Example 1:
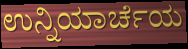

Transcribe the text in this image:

ಉನ್ನಿಯಾರ್ಚೆಯ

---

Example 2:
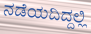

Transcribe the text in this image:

ನಡೆಯದಿದ್ದಲ್ಲಿ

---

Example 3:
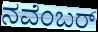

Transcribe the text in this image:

ನವೆಂಬರ್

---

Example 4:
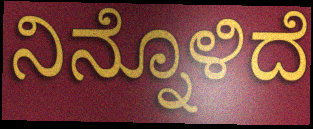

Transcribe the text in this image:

ನಿನ್ನೊಳಿದೆ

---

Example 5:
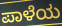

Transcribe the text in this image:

ಪಾಳೆಯ